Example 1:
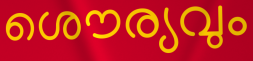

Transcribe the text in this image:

ശൌര്യവും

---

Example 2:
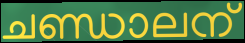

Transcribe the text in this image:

ചണ്ഡാലന്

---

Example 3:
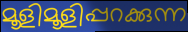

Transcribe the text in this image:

മൂളിമൂളിപ്പറക്കുന്ന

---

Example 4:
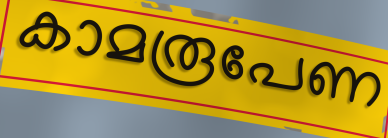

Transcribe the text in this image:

കാമരൂപേണ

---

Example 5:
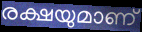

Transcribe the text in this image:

രക്ഷയുമാണ്